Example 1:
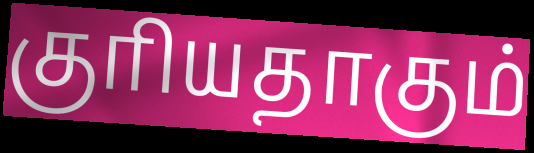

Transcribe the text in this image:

குரியதாகும்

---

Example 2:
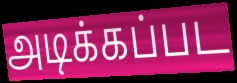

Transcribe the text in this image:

அடிக்கப்பட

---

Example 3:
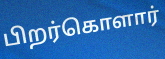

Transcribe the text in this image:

பிறர்கொளார்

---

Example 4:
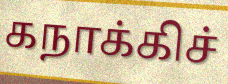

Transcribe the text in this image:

கநாக்கிச்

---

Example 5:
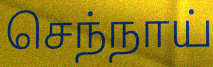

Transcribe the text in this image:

செந்நாய்